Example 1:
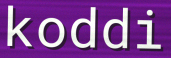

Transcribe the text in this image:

koddi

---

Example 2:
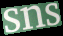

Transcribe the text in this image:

sns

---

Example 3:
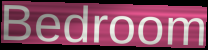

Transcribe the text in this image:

Bedroom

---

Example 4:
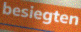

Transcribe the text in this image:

besiegten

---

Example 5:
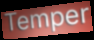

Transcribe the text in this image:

Temper